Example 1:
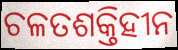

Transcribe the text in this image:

ଚଳତଶକ୍ତିହୀନ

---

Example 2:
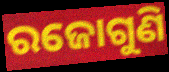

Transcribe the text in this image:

ରଜୋଗୁଣି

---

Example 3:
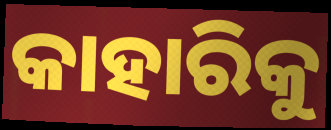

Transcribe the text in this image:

କାହାରିକୁ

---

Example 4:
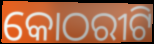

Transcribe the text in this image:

କୋଠରୀଟି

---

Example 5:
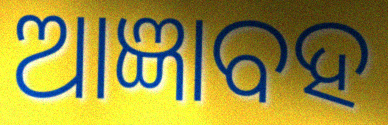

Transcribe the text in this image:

ଆଜ୍ଞାବହ